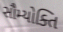
સૌમ્યોક્તિ